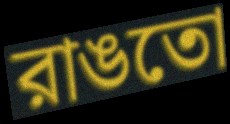
রাঙতো